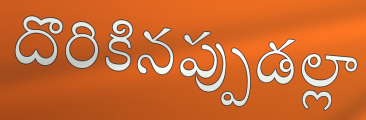
దొరికినప్పుడల్లా